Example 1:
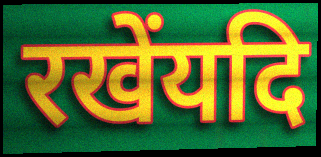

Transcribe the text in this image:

रखेंयदि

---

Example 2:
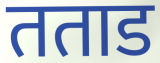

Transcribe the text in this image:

तताड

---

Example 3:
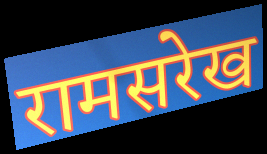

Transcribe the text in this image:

रामसरेख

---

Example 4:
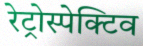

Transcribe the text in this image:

रेट्रोस्पेक्टिव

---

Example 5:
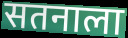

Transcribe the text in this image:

सतनाला